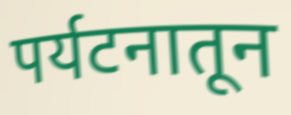
पर्यटनातून